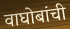
वाघोबांची